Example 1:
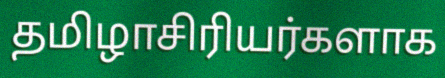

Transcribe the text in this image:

தமிழாசிரியர்களாக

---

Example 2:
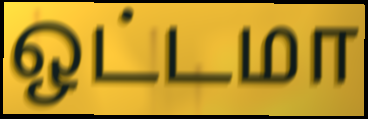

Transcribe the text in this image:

ஒட்டமா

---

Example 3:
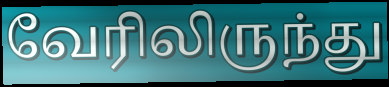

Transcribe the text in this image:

வேரிலிருந்து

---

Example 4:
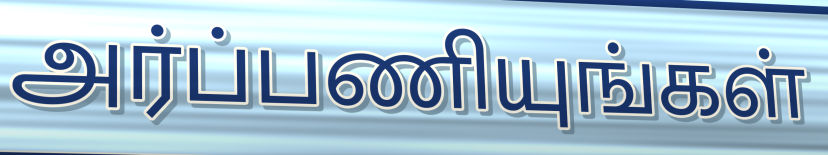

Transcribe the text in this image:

அர்ப்பணியுங்கள்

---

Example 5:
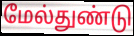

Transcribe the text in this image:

மேல்துண்டு